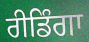
ਰੀਡਿੰਗਾ